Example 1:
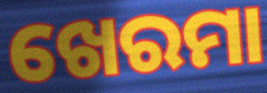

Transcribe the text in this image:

ଖେରମା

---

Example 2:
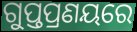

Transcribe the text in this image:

ଗୁପ୍ତପ୍ରଣୟରେ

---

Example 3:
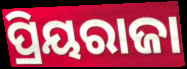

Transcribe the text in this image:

ପ୍ରିୟରାଜା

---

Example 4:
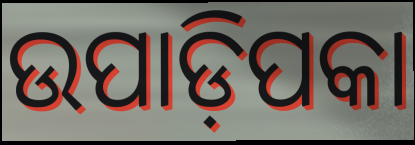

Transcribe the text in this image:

ଉପାଡ଼ିପକା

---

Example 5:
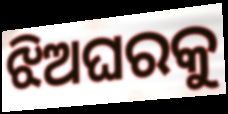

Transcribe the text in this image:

ଝିଅଘରକୁ